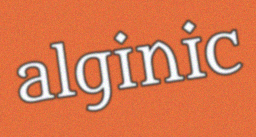
alginic